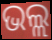
ଭଲ୍ଲ